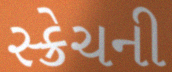
સ્ક્રેચની